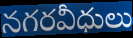
నగరవీధులు